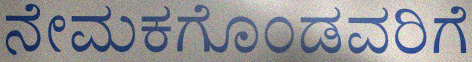
ನೇಮಕಗೊಂಡವರಿಗೆ